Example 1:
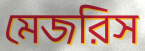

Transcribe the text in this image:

মেজরিস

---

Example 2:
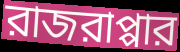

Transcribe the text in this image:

রাজরাপ্পার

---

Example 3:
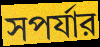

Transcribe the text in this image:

সপর্যার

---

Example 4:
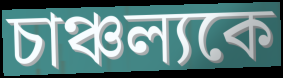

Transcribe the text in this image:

চাঞ্চল্যকে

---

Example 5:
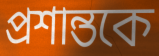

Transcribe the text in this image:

প্রশান্তকে